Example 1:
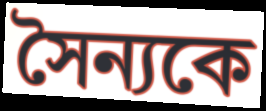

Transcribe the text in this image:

সৈন্যকে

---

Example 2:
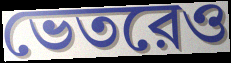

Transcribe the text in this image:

ভেতরেও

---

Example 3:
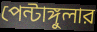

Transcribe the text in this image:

পেন্টাঙ্গুলার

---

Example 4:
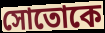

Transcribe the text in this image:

সোতোকে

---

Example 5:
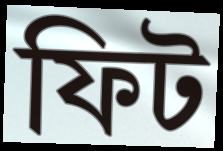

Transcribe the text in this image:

ফিট